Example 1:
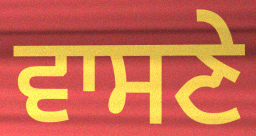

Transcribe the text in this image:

ਵਾਸਣੇ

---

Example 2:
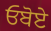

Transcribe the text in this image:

ਓਬੋਏ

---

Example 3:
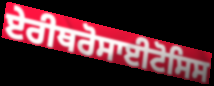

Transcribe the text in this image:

ਏਰੀਥਰੋਸਾਈਟੋਸਿਸ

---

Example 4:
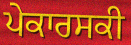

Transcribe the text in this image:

ਪੇਕਾਰਸਕੀ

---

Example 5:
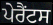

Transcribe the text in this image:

ਪੇਰੈਂਟਸ